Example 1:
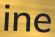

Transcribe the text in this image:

ine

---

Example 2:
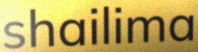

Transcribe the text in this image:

shailima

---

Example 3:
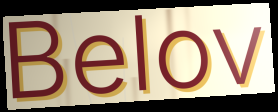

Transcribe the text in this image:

Belov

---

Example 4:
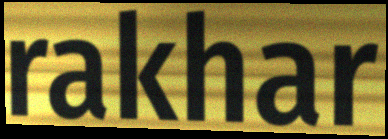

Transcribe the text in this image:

rakhar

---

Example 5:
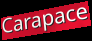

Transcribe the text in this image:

Carapace